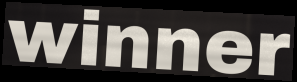
winner